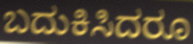
ಬದುಕಿಸಿದರೂ